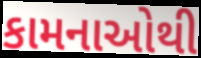
કામનાઓથી